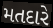
મતદારે